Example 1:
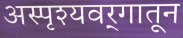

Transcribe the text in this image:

अस्पृश्यवर्गातून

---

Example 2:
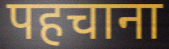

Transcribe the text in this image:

पहचाना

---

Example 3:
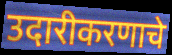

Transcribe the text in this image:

उदारीकरणाचे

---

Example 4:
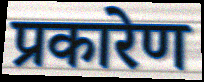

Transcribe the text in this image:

प्रकारेण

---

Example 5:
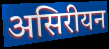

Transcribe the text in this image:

असिरीयन